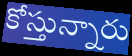
కోస్తున్నారు